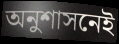
অনুশাসনেই